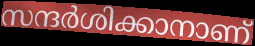
സന്ദർശിക്കാനാണ്